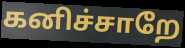
கனிச்சாறே